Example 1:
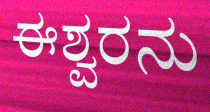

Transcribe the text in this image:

ಈಶ್ವರನು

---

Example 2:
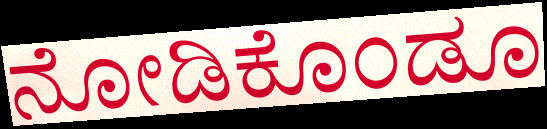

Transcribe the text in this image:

ನೋಡಿಕೊಂಡೂ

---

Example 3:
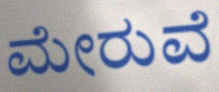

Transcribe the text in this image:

ಮೇರುವೆ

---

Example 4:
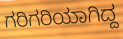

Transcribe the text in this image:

ಗರಿಗರಿಯಾಗಿದ್ದ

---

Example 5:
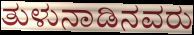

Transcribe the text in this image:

ತುಳುನಾಡಿನವರು